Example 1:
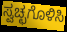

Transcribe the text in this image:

ಸ್ವಚ್ಛಗೊಳಿಸಿ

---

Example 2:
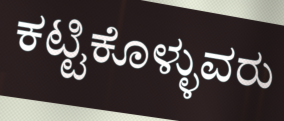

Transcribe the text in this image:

ಕಟ್ಟಿಕೊಳ್ಳುವರು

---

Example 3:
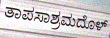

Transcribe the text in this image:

ತಾಪಸಾಶ್ರಮದೊಳ್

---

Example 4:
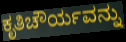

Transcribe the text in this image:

ಕೃತಿಚೌರ್ಯವನ್ನು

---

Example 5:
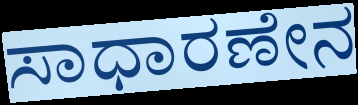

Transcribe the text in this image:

ಸಾಧಾರಣೇನ